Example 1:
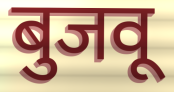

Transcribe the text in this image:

बुजवू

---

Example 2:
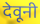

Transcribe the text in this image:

देवूनी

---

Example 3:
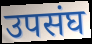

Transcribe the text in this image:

उपसंघ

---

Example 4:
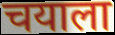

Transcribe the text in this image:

चयाला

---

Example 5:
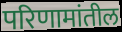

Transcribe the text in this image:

परिणामांतील